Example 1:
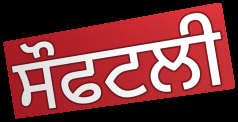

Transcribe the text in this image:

ਸੌਫਟਲੀ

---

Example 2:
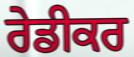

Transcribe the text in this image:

ਰੇਡੀਕਰ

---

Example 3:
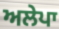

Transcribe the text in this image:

ਅਲੇਪਾ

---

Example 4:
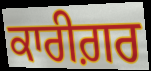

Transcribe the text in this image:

ਕਾਰੀਗ਼ਰ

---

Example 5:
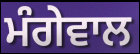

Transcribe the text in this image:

ਮੰਗੇਵਾਲ